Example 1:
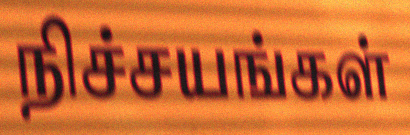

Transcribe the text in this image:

நிச்சயங்கள்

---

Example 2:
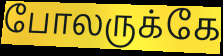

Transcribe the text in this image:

போலருக்கே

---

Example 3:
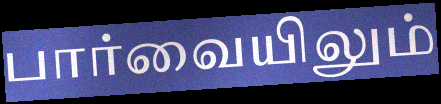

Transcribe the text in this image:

பார்வையிலும்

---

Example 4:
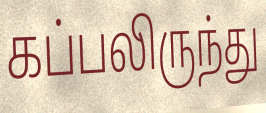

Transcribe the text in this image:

கப்பலிருந்து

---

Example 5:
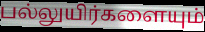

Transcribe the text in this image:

பல்லுயிர்களையும்